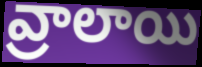
వ్రాలాయి